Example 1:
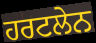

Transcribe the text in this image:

ਹਰਟਲੇਨ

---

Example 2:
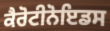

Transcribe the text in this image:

ਕੈਰੋਟੀਨੋਇਡਸ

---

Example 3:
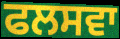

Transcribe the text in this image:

ਫਲਸਵਾ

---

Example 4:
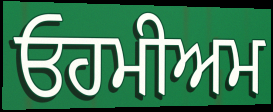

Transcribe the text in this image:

ਓਹਮੀਅਮ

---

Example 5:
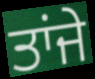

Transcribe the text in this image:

ਤਾਂਜੇ